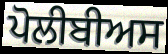
ਪੋਲੀਬੀਅਸ